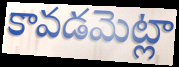
కావడమెట్లా